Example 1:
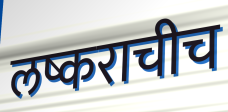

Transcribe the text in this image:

लष्कराचीच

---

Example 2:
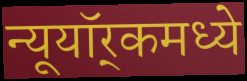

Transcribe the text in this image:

न्यूयॉर्कमध्ये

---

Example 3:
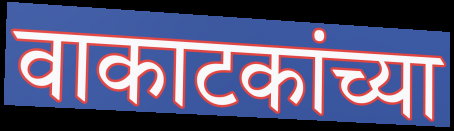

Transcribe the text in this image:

वाकाटकांच्या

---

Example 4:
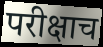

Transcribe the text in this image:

परीक्षाच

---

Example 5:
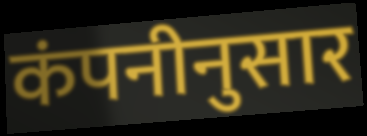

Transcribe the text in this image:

कंपनीनुसार